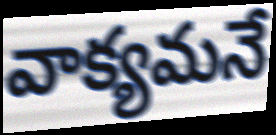
వాక్యమనే